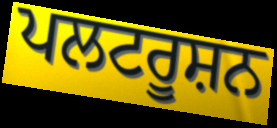
ਪਲਟਰੂਸ਼ਨ